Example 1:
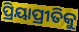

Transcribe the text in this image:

ପ୍ରିୟାପ୍ରୀତିକୁ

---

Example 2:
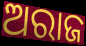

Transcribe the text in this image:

ଅରାଜ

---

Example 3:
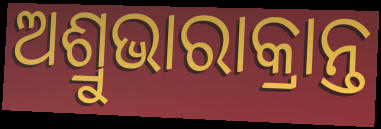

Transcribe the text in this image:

ଅଶ୍ରୁଭାରାକ୍ରାନ୍ତ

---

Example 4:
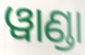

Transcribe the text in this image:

ୱାଣ୍ଡା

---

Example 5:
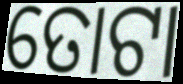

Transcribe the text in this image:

ତୋଟା